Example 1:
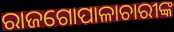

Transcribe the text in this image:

ରାଜଗୋପାଳାଚାରୀଙ୍କ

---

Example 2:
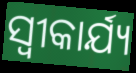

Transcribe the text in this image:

ସ୍ୱୀକାର୍ଯ୍ୟ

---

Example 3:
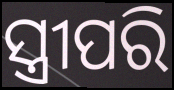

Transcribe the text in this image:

ସ୍ତ୍ରୀପରି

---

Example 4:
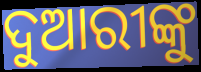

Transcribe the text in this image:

ଦୁଆରୀଙ୍କୁ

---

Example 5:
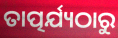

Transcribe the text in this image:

ତାତ୍ପର୍ଯ୍ୟଠାରୁ